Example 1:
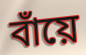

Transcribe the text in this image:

বাঁয়ে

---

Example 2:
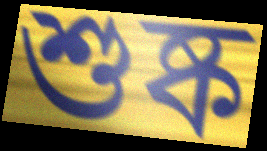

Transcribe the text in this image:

শুষ্ক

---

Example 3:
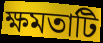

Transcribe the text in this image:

ক্ষমতাটি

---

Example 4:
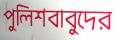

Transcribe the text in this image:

পুলিশবাবুদের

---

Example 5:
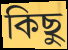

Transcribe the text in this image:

কিছু